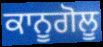
ਕਾਨੂਗੋਲੂ